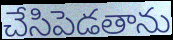
చేసిపెడతాను